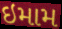
ઇમામ